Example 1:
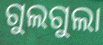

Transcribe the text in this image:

ଗୁଲଗୁଲା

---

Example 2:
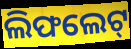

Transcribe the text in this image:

ଲିଫଲେଟ୍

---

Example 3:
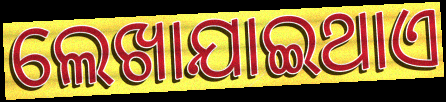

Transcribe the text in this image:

ଲେଖାଯାଇଥାଏ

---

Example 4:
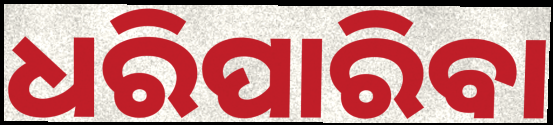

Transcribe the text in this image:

ଧରିପାରିବା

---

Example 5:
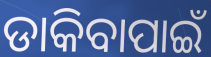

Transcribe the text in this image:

ଡାକିବାପାଇଁ